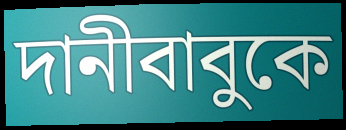
দানীবাবুকে